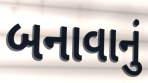
બનાવાનું